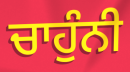
ਚਾਹੁੰਨੀ